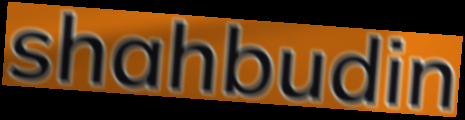
shahbudin